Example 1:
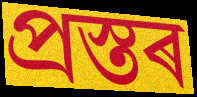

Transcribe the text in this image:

প্ৰস্তৰ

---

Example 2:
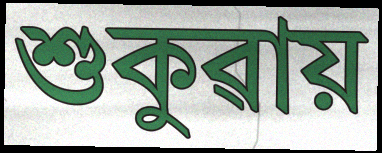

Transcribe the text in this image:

শুকুৱায়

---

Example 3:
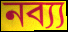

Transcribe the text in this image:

নব্য্য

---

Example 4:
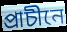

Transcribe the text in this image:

প্ৰাচীনে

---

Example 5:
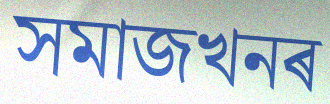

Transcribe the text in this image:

সমাজখনৰ